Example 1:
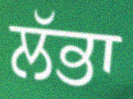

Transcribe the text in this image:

ਲੱਭਾ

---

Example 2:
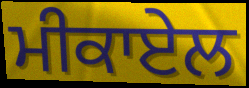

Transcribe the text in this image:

ਮੀਕਾਏਲ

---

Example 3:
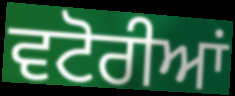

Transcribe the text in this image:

ਵਟੋਰੀਆਂ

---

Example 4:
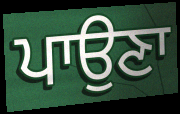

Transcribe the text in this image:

ਪਾਉਣਾ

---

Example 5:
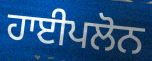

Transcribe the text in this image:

ਹਾਈਪਲੋਨ